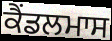
ਕੈਂਡਲਮਾਸ